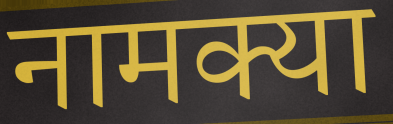
नामक्या